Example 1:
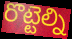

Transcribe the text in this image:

రొట్టెల్ని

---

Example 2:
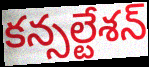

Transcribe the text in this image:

కన్సల్టేశన్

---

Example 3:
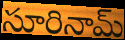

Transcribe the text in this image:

సూరినామ్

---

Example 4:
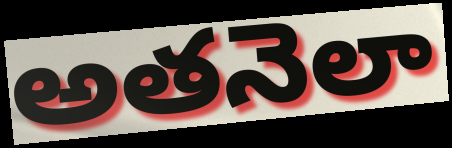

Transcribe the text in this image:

అతనెలా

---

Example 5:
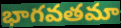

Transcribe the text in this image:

భాగవతమా